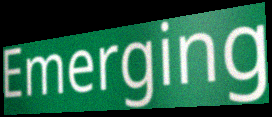
Emerging